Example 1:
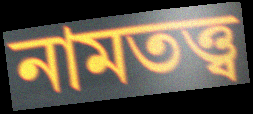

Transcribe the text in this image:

নামতত্ত্ব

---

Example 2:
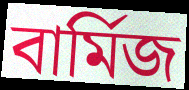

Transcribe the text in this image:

বার্মিজ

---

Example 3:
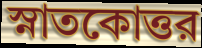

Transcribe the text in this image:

স্নাতকোত্তর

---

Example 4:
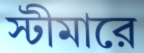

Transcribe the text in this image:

স্টীমারে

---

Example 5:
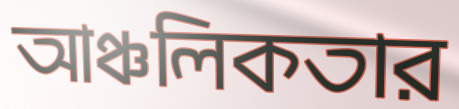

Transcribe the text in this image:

আঞ্চলিকতার